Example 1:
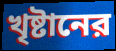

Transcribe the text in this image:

খৃষ্টানের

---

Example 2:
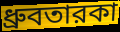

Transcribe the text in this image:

ধ্রুবতারকা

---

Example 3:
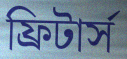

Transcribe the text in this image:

ফ্রিটার্স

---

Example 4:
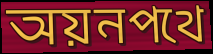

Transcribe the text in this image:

অয়নপথে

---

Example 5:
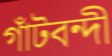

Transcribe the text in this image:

গাঁটবন্দী